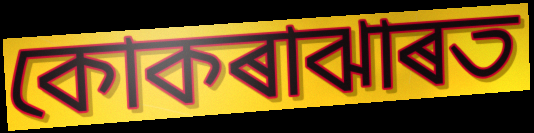
কোকৰাঝাৰত